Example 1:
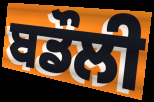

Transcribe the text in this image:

ਬਡੌਲੀ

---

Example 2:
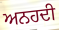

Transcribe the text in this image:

ਅਨਹਦੀ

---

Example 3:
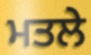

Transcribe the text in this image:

ਮਤਲੇ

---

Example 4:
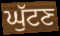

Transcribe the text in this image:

ਘੁੱਟਣ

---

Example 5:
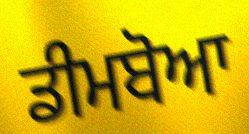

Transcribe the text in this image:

ਡੀਮਬੋਆ